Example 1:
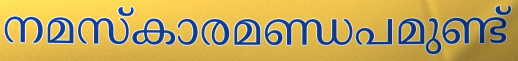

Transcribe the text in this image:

നമസ്കാരമണ്ഡപമുണ്ട്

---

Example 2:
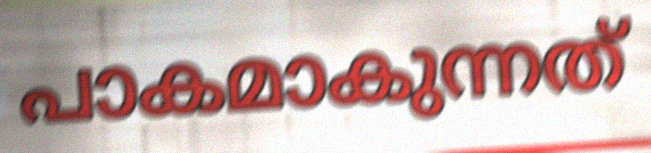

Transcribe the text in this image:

പാകമാകുന്നത്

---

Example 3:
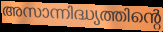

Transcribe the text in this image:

അസാന്നിദ്ധ്യത്തിന്റെ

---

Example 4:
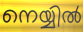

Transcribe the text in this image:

നെയ്യിൽ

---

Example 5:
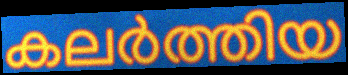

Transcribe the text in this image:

കലർത്തിയ